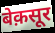
बेक़सूर